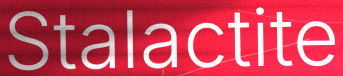
Stalactite